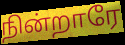
நின்றாரே